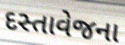
દસ્તાવેજના